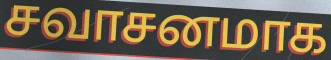
சவாசனமாக